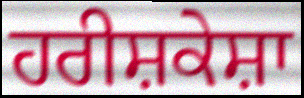
ਹਰੀਸ਼ਕੇਸ਼ਾ